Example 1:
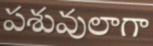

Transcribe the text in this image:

పశువులాగా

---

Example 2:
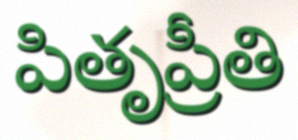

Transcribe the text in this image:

పితృప్రీతి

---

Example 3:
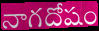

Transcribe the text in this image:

నాగదోషం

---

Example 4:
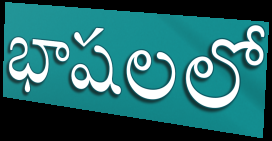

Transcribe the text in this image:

భాషలలో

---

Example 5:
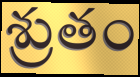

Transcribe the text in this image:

శ్రుతం